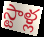
స్టాళ్ల